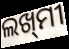
ଲଖ୍‌ମୀ